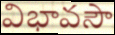
విభావసౌ